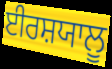
ਈਰਸ਼ਯਾਲੂ